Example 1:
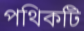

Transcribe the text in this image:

পথিকটি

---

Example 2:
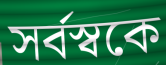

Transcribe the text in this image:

সর্বস্বকে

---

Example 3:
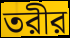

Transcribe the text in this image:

তরীর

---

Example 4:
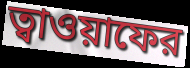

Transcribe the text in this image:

ত্বাওয়াফের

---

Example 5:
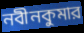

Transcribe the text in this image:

নবীনকুমার